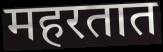
महरतात